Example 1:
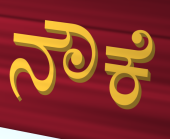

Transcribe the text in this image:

ನೌಕೆ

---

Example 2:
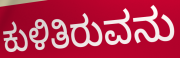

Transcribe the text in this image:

ಕುಳಿತಿರುವನು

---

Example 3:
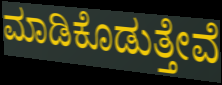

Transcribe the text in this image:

ಮಾಡಿಕೊಡುತ್ತೇವೆ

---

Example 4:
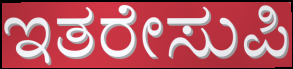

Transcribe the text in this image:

ಇತರೇಸುಪಿ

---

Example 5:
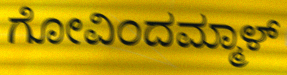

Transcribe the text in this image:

ಗೋವಿಂದಮ್ಮಾಳ್